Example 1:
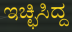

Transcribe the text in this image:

ಇಚ್ಛಿಸಿದ್ದ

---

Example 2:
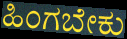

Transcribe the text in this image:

ಹಿಂಗಬೇಕು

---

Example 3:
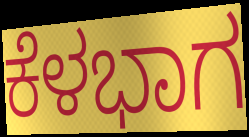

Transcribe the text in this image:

ಕೆಳಭಾಗ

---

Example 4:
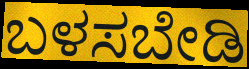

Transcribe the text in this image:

ಬಳಸಬೇಡಿ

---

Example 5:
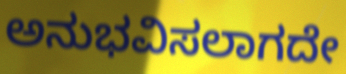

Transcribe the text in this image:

ಅನುಭವಿಸಲಾಗದೇ